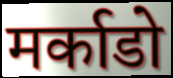
मर्काडो